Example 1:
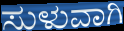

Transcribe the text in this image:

ಸುಳುವಾಗಿ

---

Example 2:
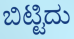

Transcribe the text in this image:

ಬಿಟ್ಟಿದು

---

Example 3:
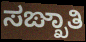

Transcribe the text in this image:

ಸಙ್ಖಾತಿ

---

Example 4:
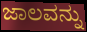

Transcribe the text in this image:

ಜಾಲವನ್ನು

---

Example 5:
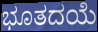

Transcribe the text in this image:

ಭೂತದಯೆ